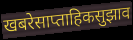
खबरेसाप्ताहिकसुझाव